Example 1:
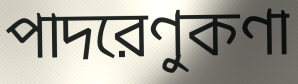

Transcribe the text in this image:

পাদরেণুকণা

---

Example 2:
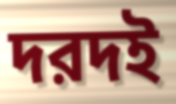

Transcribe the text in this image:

দরদই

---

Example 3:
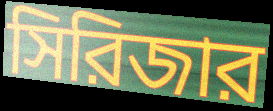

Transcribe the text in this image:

সিরিজার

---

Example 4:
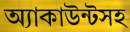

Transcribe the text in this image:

অ্যাকাউন্টসহ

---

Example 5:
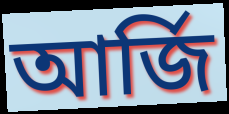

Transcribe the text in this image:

আর্জি